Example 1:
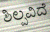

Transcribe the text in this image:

ಶಿಲ್ಪವಿದೆ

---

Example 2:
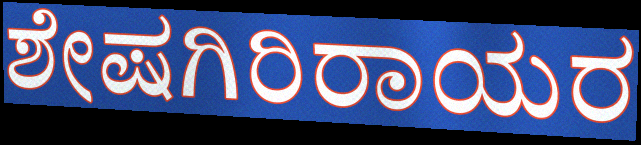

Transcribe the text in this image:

ಶೇಷಗಿರಿರಾಯರ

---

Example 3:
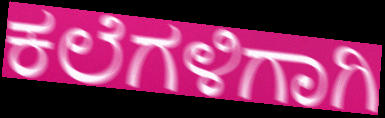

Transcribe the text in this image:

ಕಲೆಗಳಿಗಾಗಿ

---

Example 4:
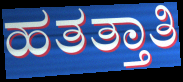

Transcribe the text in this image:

ಹತತ್ತಾತಿ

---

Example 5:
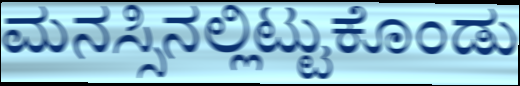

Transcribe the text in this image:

ಮನಸ್ಸಿನಲ್ಲಿಟ್ಟುಕೊಂಡು